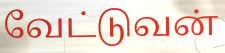
வேட்டுவன்